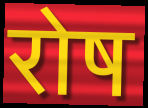
रोष